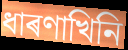
ধাৰণাখিনি